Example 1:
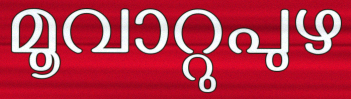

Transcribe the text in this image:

മൂവാറ്റുപുഴ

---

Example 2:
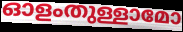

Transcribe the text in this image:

ഓളംതുള്ളാമോ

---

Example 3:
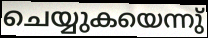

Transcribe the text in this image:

ചെയ്യുകയെന്നു്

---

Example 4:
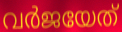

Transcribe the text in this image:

വർജയേത്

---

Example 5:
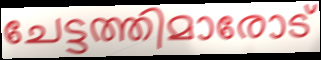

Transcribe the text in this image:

ചേട്ടത്തിമാരോട്